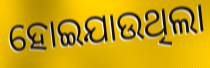
ହୋଇଯାଉଥିଲା